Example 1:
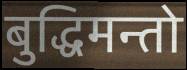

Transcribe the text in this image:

बुद्धिमन्तो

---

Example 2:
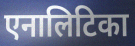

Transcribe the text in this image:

एनालिटिका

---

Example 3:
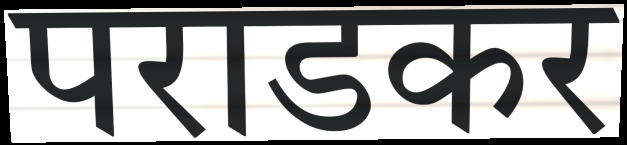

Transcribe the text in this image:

पराडकर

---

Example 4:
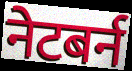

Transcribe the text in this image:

नेटबर्न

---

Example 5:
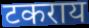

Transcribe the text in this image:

टकराय